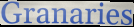
Granaries